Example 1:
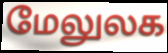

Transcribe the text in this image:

மேலுலக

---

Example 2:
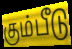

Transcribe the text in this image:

கும்பீடு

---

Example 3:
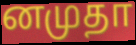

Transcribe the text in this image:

னமுதா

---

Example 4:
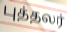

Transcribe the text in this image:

புத்தலர்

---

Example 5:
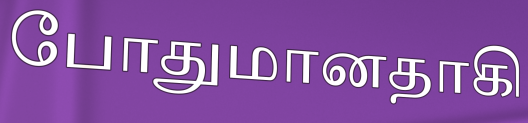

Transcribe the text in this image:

போதுமானதாகி